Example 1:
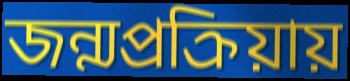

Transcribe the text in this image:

জন্মপ্রক্রিয়ায়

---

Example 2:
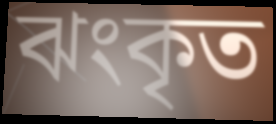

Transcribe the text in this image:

ঝংকৃত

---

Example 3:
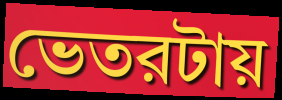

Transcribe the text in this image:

ভেতরটায়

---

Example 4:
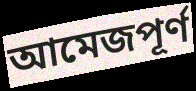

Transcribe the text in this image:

আমেজপূর্ণ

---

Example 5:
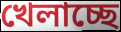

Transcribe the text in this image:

খেলাচ্ছে